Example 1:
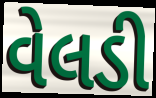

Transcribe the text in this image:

વેલડી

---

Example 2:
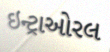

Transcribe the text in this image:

ઇન્ટ્રાઓરલ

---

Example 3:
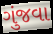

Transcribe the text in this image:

ગુંજવા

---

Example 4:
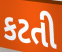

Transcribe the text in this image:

કટતી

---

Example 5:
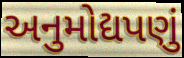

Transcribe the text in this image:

અનુમોદ્યપણું